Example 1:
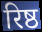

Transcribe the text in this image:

रिष्ठ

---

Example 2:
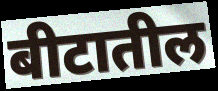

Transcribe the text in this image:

बीटातील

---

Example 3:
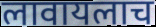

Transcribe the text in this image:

लावायलाच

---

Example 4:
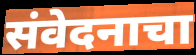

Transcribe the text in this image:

संवेदनाचा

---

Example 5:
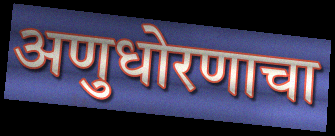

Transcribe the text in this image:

अणुधोरणाचा